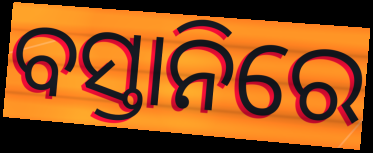
ବସ୍ତାନିରେ